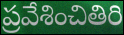
ప్రవేశించితిరి